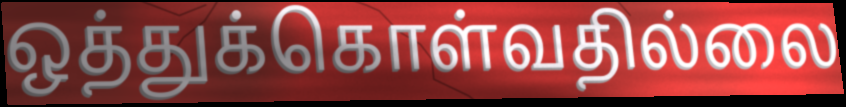
ஒத்துக்கொள்வதில்லை